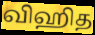
விஹித